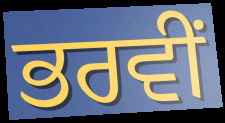
ਭਰਵੀਂ